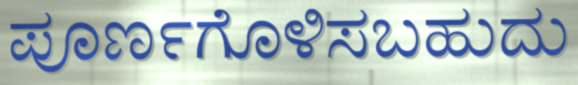
ಪೂರ್ಣಗೊಳಿಸಬಹುದು